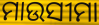
ମାଉସୀମା